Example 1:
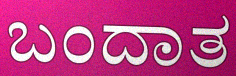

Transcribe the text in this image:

ಬಂದಾತ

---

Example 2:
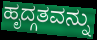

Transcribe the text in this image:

ಹೃದ್ಗತವನ್ನು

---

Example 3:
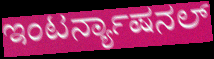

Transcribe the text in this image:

ಇಂಟರ್ನ್ಯಾಷನಲ್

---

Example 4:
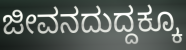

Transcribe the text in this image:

ಜೀವನದುದ್ದಕ್ಕೂ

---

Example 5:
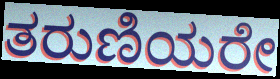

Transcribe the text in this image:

ತರುಣಿಯರೇ